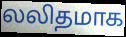
லலிதமாக